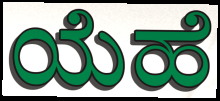
ಯೆಹೆ